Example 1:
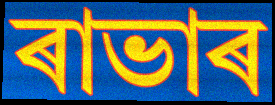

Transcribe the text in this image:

ৰাভাৰ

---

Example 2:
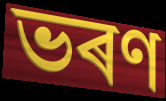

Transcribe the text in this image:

ভৰণ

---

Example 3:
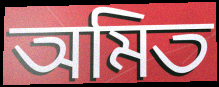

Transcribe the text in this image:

অমিত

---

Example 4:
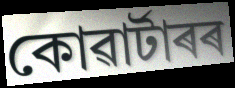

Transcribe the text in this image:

কোৱাৰ্টাৰৰ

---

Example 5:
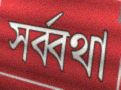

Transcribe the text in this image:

সৰ্ব্বথা